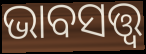
ଭାବସତ୍ତ୍ୱ